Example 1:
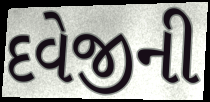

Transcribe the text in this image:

દવેજીની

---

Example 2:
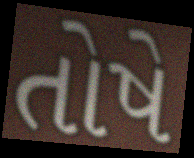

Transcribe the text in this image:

તોષે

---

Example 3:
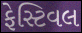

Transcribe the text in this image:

ફેસ્ટિવલ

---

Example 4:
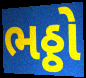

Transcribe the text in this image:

ભઠ્ઠો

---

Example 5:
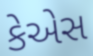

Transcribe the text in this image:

કેએસ